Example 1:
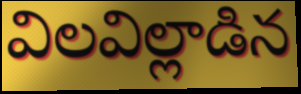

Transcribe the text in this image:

విలవిల్లాడిన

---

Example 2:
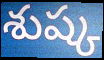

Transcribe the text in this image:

శుష్క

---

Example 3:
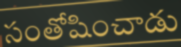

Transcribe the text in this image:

సంతోషించాడు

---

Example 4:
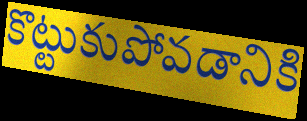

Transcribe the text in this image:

కొట్టుకుపోవడానికి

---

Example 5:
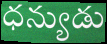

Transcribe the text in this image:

ధన్యుడు